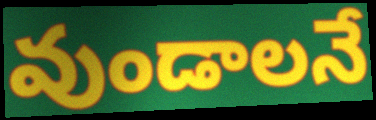
వుండాలనే